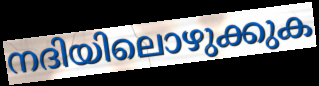
നദിയിലൊഴുക്കുക